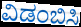
ವಿಡಂಬಿಸಿ